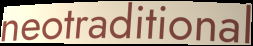
neotraditional